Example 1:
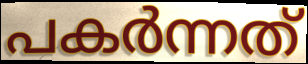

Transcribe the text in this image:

പകർന്നത്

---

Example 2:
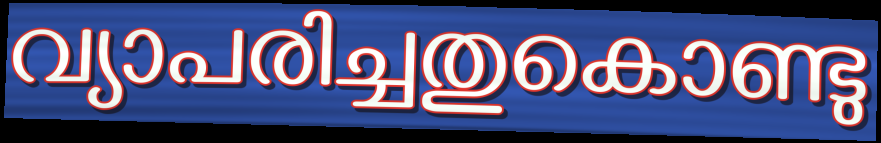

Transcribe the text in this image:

വ്യാപരിച്ചതുകൊണ്ടു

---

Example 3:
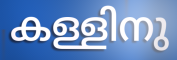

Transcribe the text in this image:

കള്ളിനു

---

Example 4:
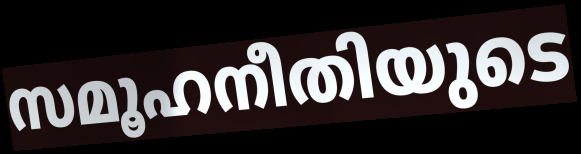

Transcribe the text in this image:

സമൂഹനീതിയുടെ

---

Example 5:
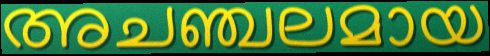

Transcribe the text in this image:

അചഞ്ചലമായ